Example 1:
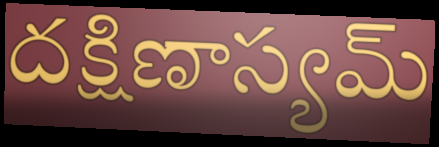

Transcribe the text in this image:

దక్షిణాస్యమ్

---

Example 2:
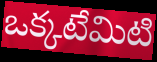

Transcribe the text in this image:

ఒక్కటేమిటి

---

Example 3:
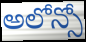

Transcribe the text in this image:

అలోన్సో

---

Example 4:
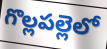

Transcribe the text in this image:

గొల్లపల్లెలో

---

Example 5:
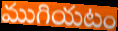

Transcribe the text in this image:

ముగియటం